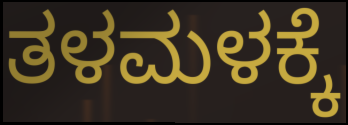
ತಳಮಳಕ್ಕೆ